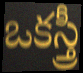
ఒకస్త్రీ